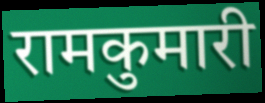
रामकुमारी